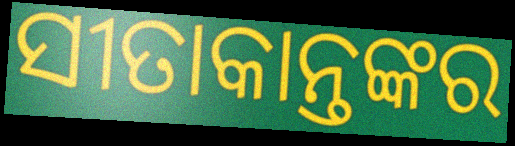
ସୀତାକାନ୍ତଙ୍କର